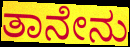
ತಾನೇನು